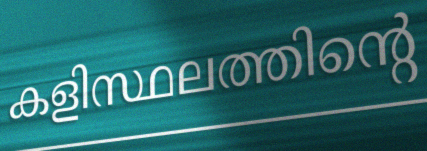
കളിസ്ഥലത്തിന്റെ